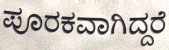
ಪೂರಕವಾಗಿದ್ದರೆ